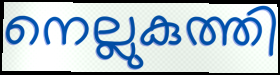
നെല്ലുകുത്തി